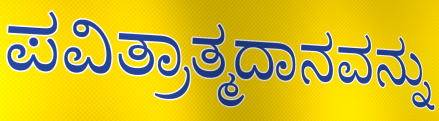
ಪವಿತ್ರಾತ್ಮದಾನವನ್ನು